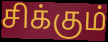
சிக்கும்